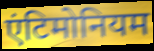
एंटिमोनियम